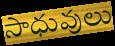
సాధువులు